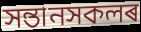
সন্তানসকলৰ